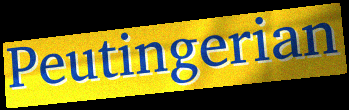
Peutingerian